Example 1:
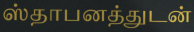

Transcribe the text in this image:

ஸ்தாபனத்துடன்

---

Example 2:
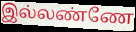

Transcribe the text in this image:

இல்லண்ணே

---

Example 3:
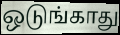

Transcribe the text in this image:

ஒடுங்காது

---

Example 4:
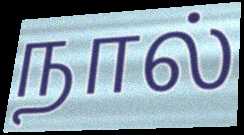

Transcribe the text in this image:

நால்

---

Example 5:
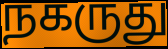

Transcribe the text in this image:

நகருது